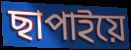
ছাপাইয়ে